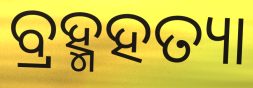
ବ୍ରହ୍ମହତ୍ୟା